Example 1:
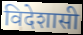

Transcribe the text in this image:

विदेशासी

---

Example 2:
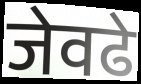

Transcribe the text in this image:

जेवढे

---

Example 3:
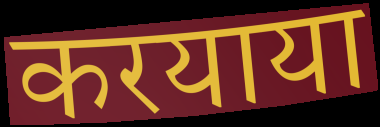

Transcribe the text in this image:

करयाया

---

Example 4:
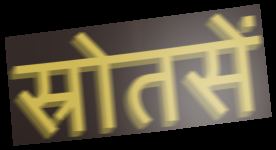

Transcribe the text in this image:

स्रोतसें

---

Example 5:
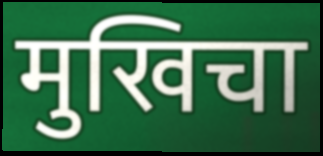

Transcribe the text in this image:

मुखिचा